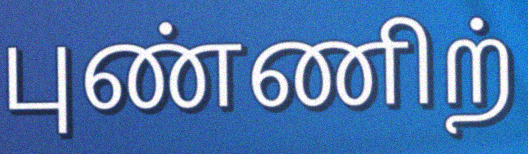
புண்ணிற்